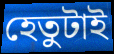
হেতুটাই